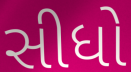
સીધો